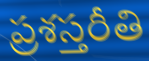
ప్రశస్తరీతి